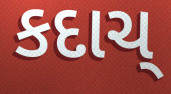
કદાચ્